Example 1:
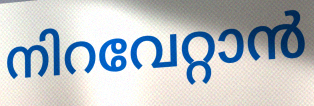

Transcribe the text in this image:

നിറവേറ്റാൻ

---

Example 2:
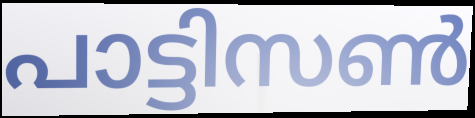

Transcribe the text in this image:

പാട്ടിസൺ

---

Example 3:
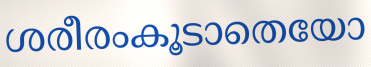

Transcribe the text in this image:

ശരീരംകൂടാതെയോ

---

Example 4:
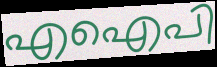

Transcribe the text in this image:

എഐപി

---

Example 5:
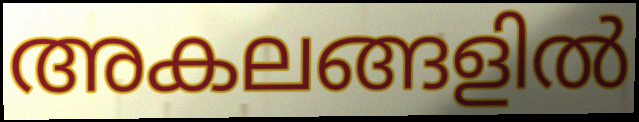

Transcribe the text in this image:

അകലങ്ങളിൽ